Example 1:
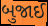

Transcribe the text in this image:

બુજાઈ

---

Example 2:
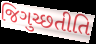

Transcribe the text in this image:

જિગુચ્છતીતિ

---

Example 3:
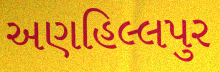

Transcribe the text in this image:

અણહિલ્લપુર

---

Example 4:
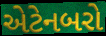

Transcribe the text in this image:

એટેનબરો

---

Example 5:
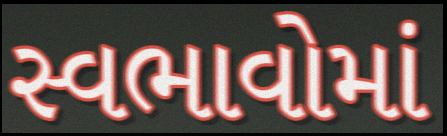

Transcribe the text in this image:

સ્વભાવોમાં